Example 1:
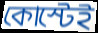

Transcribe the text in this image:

কোস্টেই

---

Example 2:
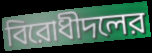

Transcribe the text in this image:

বিরোধীদলের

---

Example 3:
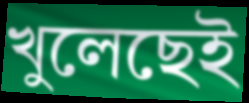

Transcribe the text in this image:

খুলেছেই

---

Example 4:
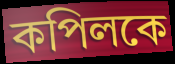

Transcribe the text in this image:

কপিলকে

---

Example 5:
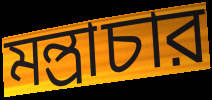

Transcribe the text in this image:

মন্ত্রাচার